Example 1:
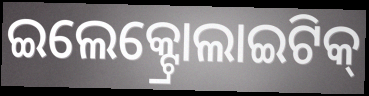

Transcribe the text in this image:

ଇଲେକ୍ଟ୍ରୋଲାଇଟିକ୍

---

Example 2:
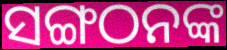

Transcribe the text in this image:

ସଙ୍ଗଠନଙ୍କ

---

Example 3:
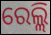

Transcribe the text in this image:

ରେଲ୍ଲି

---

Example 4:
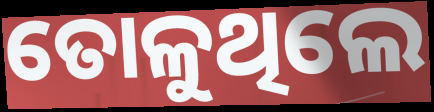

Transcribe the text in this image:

ତୋଳୁଥିଲେ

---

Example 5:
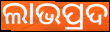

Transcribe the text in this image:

ଲାଭପ୍ରଦ